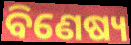
ବିଣେଷ୍ୟ